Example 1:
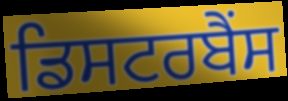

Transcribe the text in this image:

ਡਿਸਟਰਬੈਂਸ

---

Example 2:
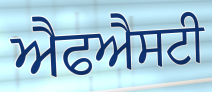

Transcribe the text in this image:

ਐਫਐਸਟੀ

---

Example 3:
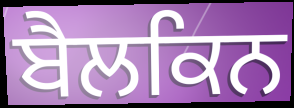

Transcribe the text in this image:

ਬੈਲਕਿਨ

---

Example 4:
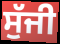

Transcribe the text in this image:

ਸੁੱਜੀ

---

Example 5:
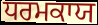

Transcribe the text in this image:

ਧਰਮਕਾਯ